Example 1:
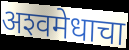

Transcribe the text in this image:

अश्‍वमेधाचा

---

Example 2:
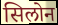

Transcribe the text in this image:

सिलोन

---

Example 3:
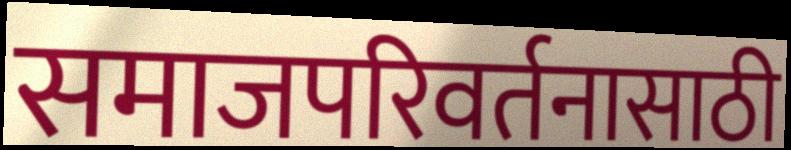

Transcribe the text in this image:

समाजपरिवर्तनासाठी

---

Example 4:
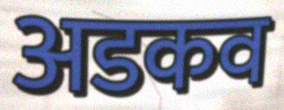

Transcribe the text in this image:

अडकव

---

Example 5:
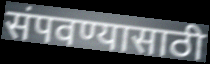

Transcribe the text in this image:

संपवण्यासाठी